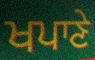
ਖਪਾਣੇ